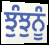
ਝੁੰਝੁਨੂੰ